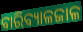
ବାରିବ୍ୟାଳଜାଳ